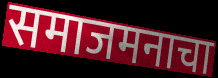
समाजमनाचा